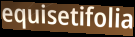
equisetifolia